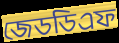
জেডডিএফ